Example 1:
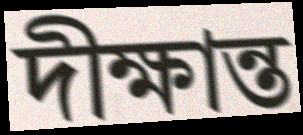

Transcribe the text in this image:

দীক্ষান্ত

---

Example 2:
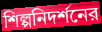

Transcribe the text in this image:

শিল্পনিদর্শনের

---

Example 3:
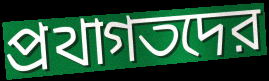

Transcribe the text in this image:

প্রথাগতদের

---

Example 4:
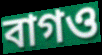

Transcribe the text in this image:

বাগও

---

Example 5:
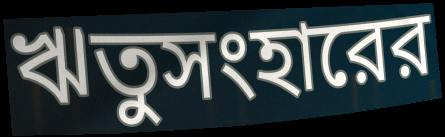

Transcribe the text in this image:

ঋতুসংহারের